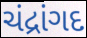
ચંદ્રાંગદ